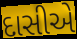
દાસીએ